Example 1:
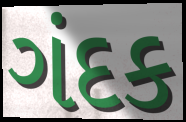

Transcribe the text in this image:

ગંદક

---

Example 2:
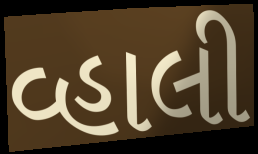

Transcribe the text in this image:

વ્હાલી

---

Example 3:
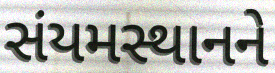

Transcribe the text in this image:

સંયમસ્થાનને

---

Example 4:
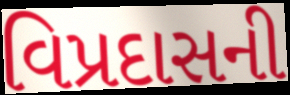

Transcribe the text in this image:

વિપ્રદાસની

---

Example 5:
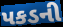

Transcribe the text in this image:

પકડની